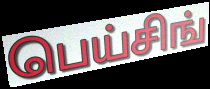
பெய்சிங்